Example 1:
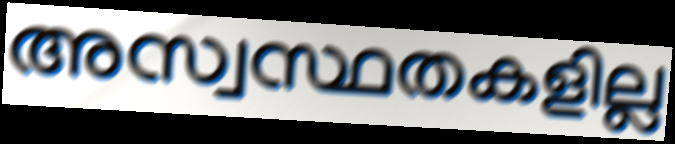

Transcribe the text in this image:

അസ്വസ്ഥതകളില്ല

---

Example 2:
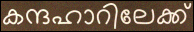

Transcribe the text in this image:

കന്ദഹാറിലേക്ക്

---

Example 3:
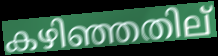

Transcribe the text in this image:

കഴിഞ്ഞതില്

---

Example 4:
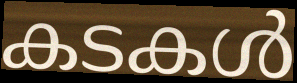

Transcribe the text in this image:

കടകൾ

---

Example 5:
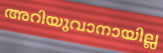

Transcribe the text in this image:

അറിയുവാനായില്ല